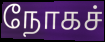
நோகச்